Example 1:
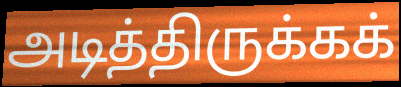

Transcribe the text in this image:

அடித்திருக்கக்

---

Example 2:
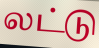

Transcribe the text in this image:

லட்டு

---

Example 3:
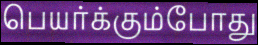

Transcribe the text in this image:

பெயர்க்கும்போது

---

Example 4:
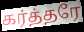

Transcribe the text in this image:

கர்த்தரே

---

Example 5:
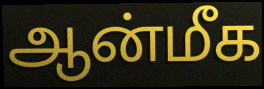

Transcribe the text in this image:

ஆன்மீக